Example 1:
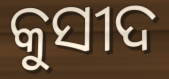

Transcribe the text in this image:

କୁସୀଦ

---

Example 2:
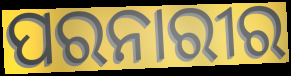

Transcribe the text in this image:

ପରନାରୀର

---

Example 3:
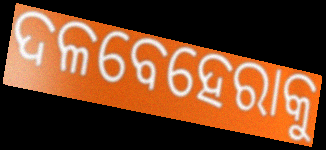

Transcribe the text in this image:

ଦଳବେହେରାକୁ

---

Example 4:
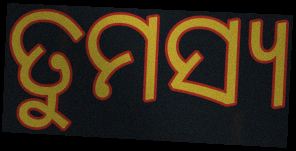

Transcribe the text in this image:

ତୁମସ୍ୟ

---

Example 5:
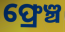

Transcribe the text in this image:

ଫ୍ରେଞ୍ଚ